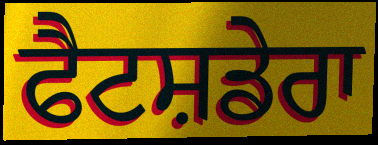
ਫੈਟਸ਼ਡੇਰਾ